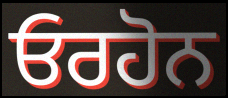
ਓਰਹੋਨ